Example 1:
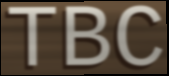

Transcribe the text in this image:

TBC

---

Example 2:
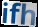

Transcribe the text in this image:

ifh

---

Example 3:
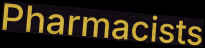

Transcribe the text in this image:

Pharmacists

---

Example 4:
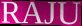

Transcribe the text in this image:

RAJU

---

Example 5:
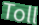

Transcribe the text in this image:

Toll